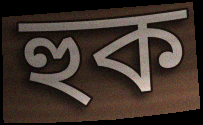
হুক